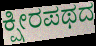
ಕ್ಷೀರಪಥದ